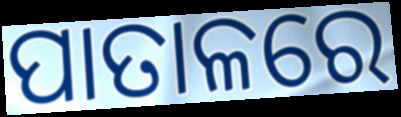
ପାତାଳରେ